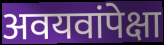
अवयवांपेक्षा